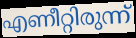
എണീറ്റിരുന്ന്